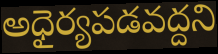
అధైర్యపడవద్దని